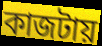
কাজটায়